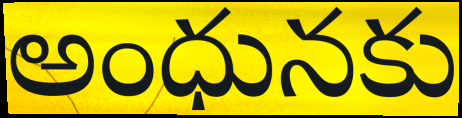
అంధునకు